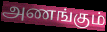
அணங்கும்